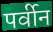
पर्वीन